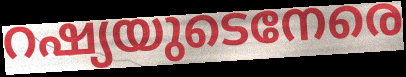
റഷ്യയുടെനേരെ